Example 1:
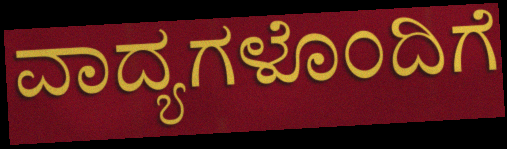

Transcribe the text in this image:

ವಾದ್ಯಗಳೊಂದಿಗೆ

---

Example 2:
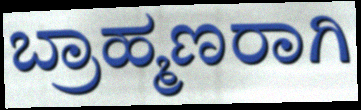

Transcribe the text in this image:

ಬ್ರಾಹ್ಮಣರಾಗಿ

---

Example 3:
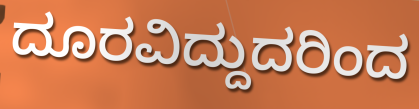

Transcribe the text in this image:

ದೂರವಿದ್ದುದರಿಂದ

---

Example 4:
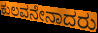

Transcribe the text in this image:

ಕುಲವನೇನಾದರು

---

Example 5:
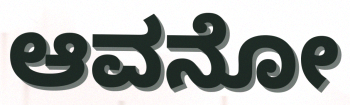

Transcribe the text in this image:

ಆವನೋ